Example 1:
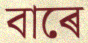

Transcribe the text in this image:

বাৰে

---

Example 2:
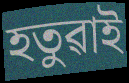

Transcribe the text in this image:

হতুৱাই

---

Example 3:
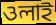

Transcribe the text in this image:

ওলাই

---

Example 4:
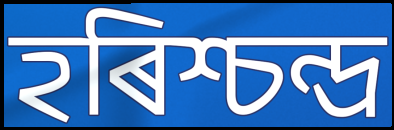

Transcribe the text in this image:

হৰিশ্চন্দ্ৰ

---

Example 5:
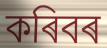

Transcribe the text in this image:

কৰিবৰ